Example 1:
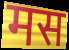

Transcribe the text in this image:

मस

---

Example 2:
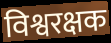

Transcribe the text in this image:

विश्वरक्षक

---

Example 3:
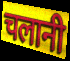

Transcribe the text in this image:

चलानी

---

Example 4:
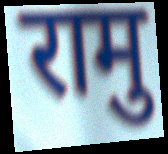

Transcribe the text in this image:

रामु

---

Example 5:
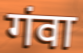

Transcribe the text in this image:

गंवा